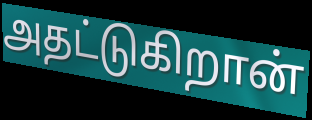
அதட்டுகிறான்